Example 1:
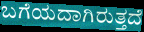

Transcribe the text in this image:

ಬಗೆಯದಾಗಿರುತ್ತದೆ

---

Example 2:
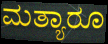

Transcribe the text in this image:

ಮತ್ಯಾರೂ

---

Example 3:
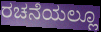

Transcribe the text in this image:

ರಚನೆಯಲ್ಲೂ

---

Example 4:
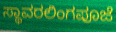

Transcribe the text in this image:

ಸ್ಥಾವರಲಿಂಗಪೂಜೆ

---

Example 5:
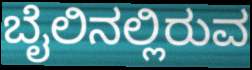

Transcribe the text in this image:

ಬೈಲಿನಲ್ಲಿರುವ